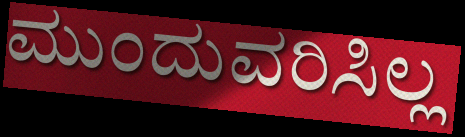
ಮುಂದುವರಿಸಿಲ್ಲ